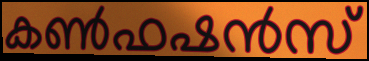
കൺഫഷൻസ്